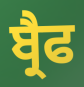
ਬ੍ਰੈਫ